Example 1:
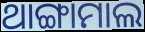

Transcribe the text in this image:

ଥାଙ୍ଗାମାଲ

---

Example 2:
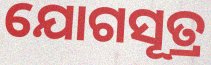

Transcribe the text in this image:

ଯୋଗସୂତ୍ର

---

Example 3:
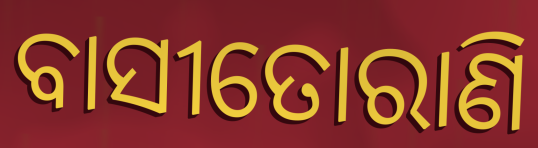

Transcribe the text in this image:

ବାସୀତୋରାଣି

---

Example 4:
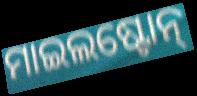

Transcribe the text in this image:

ମାଇଲଷ୍ଟୋନ୍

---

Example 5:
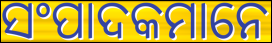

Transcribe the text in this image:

ସଂପାଦକମାନେ